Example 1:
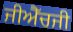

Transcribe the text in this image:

ਜੀਐੱਚਜੀ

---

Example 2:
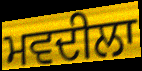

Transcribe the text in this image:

ਮਵਦੀਲਾ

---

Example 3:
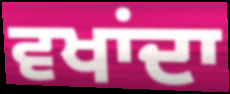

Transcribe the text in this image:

ਵਖਾਂਦਾ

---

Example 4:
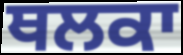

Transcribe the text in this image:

ਥਲਕਾ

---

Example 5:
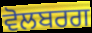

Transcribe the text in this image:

ਵੋਲਬਰਗ